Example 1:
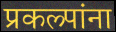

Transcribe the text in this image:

प्रकल्पांना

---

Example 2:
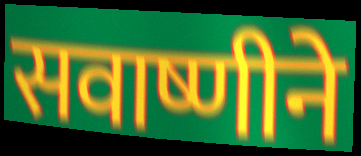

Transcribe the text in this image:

सवाष्णीने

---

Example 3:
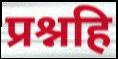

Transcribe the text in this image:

प्रश्नहि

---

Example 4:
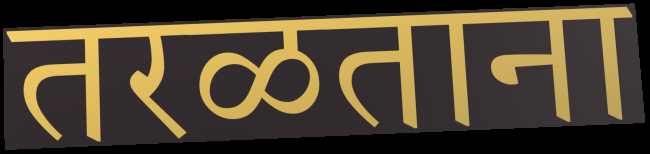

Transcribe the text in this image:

तरळताना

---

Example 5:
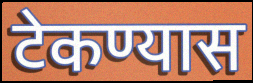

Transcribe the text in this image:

टेकण्यास